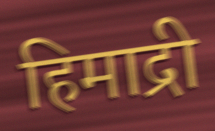
हिमाद्री